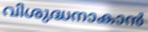
വിശുദ്ധനാകാൻ